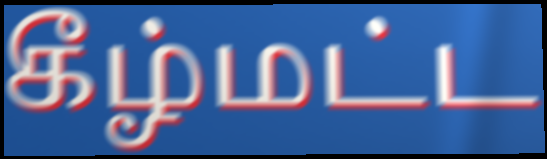
கீழ்மட்ட